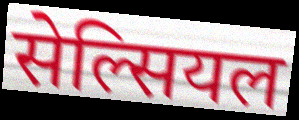
सेल्सियल